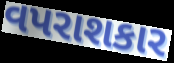
વપરાશકાર